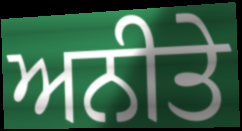
ਅਨੀਤੇ